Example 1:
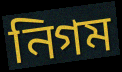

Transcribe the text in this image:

নিগম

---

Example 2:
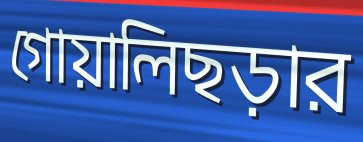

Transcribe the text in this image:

গোয়ালিছড়ার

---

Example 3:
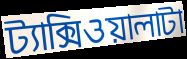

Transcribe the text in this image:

ট্যাক্সিওয়ালাটা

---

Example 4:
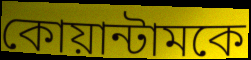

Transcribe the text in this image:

কোয়ান্টামকে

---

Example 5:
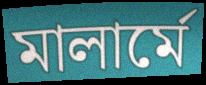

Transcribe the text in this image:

মালার্মে